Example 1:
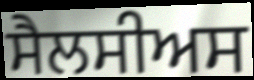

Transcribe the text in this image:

ਸੈਲਸੀਅਸ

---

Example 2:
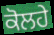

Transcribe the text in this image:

ਕੋਲਹੇ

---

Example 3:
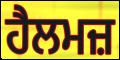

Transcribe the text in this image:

ਹੈਲਮਜ਼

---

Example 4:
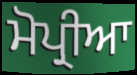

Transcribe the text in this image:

ਮੋਪ੍ਰੀਆ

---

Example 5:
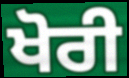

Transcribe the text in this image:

ਖੋਰੀ